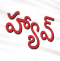
హ్యావ్